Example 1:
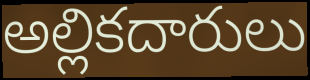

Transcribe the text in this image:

అల్లికదారులు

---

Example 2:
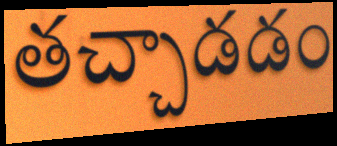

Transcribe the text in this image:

తచ్చాడడం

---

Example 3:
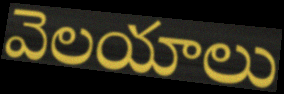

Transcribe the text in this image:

వెలయాలు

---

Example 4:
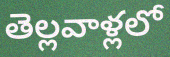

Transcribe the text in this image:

తెల్లవాళ్లలో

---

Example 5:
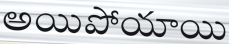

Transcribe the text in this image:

అయిపోయాయి